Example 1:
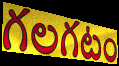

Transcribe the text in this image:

గలగటం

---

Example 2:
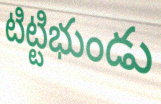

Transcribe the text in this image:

టిట్టిభుండు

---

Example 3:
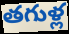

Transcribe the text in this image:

తగుళ్ల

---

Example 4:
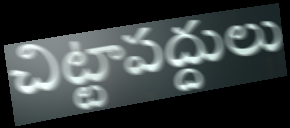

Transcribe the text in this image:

చిట్టాపద్దులు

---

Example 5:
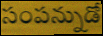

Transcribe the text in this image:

సంపన్నుడో